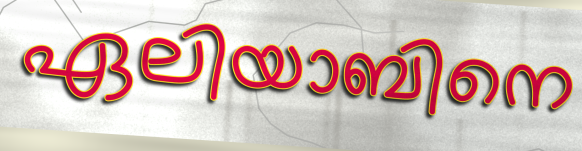
ഏലിയാബിനെ